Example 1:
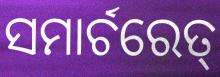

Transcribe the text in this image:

ସମାର୍ଚରେତ୍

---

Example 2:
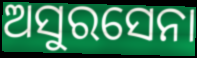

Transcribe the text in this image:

ଅସୁରସେନା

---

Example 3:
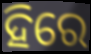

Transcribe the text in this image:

ହିରେ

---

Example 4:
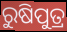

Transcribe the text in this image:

ରୁଷିପୁତ୍ର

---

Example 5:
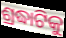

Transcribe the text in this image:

ଶ୍ରଦ୍ଧାଟିକୁ